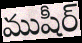
ముషీర్